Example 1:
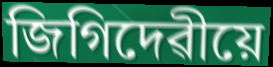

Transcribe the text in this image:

জিগিদেৱীয়ে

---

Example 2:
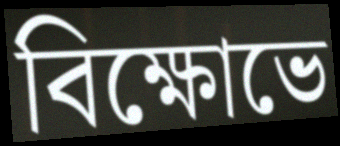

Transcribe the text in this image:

বিক্ষোভে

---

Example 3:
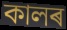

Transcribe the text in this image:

কালৰ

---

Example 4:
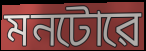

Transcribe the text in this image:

মনটোৱে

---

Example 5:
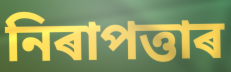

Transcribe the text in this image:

নিৰাপত্তাৰ